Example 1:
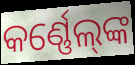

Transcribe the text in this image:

କର୍ଣ୍ଣେଲ୍‌ଙ୍କ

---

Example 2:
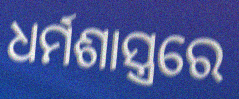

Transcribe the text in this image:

ଧର୍ମଶାସ୍ତ୍ରରେ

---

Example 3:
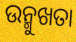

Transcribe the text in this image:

ଉନ୍ମୁଖତା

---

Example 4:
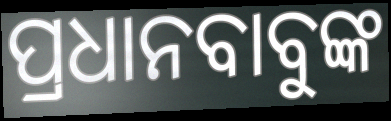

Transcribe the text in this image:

ପ୍ରଧାନବାବୁଙ୍କ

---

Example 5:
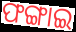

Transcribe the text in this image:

ଫଙ୍ଗାଇ